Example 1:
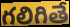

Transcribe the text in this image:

గలిగితే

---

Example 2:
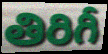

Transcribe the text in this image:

తిరిగీ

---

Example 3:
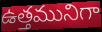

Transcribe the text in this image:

ఉత్తమునిగా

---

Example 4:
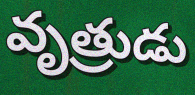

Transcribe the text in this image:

వృత్రుడు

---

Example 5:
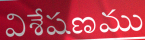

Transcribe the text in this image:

విశేషణము